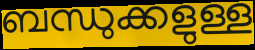
ബന്ധുക്കളുള്ള